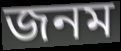
জনম